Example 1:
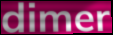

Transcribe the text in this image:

dimer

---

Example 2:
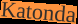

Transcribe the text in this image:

Katonda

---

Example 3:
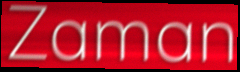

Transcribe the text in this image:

Zaman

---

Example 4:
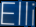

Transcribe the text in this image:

Elli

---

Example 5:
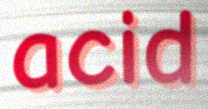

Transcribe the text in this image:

acid